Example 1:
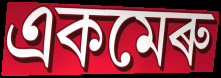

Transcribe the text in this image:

একমেৰু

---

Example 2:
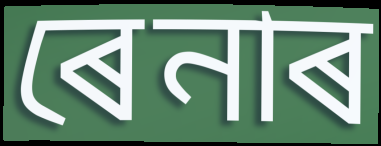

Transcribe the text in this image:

ৰেনাৰ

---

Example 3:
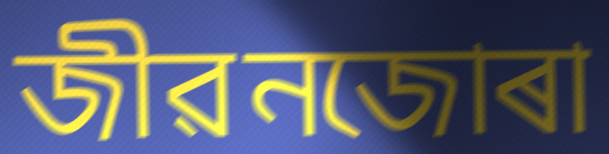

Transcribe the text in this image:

জীৱনজোৰা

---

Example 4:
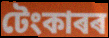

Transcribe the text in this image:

টেংকাৰৰ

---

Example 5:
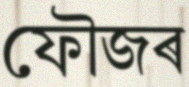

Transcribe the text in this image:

ফৌজৰ